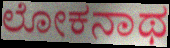
ಲೋಕನಾಥ